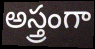
అస్త్రంగా